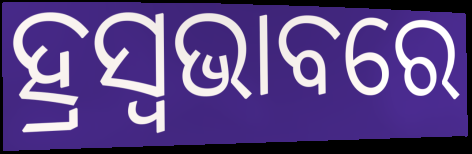
ହ୍ରସ୍ୱଭାବରେ